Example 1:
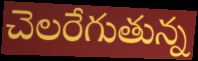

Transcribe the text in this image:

చెలరేగుతున్న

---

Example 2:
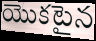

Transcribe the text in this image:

యొకటైన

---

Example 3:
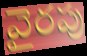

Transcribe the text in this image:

వైరపు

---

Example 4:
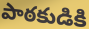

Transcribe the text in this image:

పాఠకుడికి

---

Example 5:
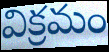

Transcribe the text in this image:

విక్రమం